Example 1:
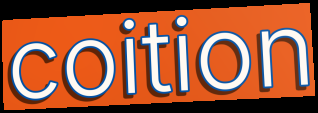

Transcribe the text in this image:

coition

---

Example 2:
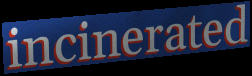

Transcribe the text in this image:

incinerated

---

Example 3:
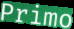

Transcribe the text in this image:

Primo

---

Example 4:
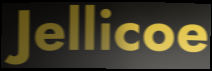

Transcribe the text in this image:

Jellicoe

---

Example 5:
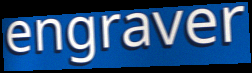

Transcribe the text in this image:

engraver